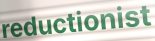
reductionist